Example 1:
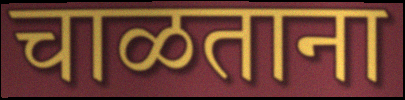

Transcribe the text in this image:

चाळताना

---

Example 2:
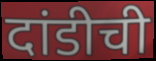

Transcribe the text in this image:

दांडीची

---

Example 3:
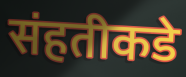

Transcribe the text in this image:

संहतीकडे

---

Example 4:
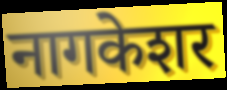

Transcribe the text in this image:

नागकेशर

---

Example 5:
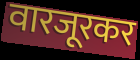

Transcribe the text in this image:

वारजूरकर